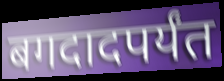
बगदादपर्यंत